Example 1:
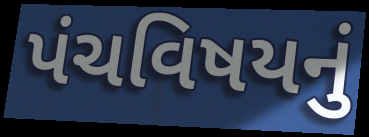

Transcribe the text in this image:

પંચવિષયનું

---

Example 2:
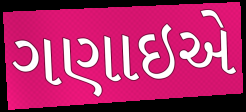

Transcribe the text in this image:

ગણાઇએ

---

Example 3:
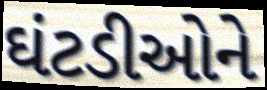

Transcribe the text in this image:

ઘંટડીઓને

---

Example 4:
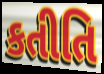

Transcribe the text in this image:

કતીતિ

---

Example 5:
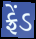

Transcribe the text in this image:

ફ્રેંડ